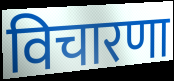
विचारणा